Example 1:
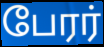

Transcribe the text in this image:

பேரர்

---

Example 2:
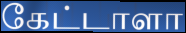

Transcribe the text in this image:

கேட்டாளா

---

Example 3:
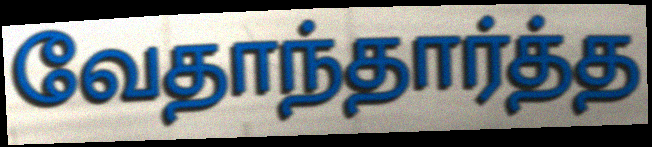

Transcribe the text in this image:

வேதாந்தார்த்த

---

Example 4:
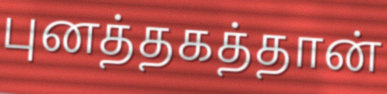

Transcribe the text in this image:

புனத்தகத்தான்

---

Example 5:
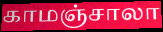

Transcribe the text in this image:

காமஞ்சாலா